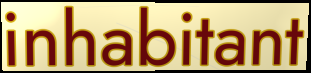
inhabitant